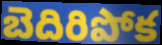
బెదిరిపోక